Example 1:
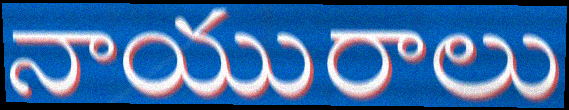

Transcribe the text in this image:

నాయురాలు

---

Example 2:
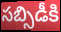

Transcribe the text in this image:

సబ్సిడీకి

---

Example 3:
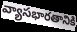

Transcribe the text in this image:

వ్యాసభారతానికి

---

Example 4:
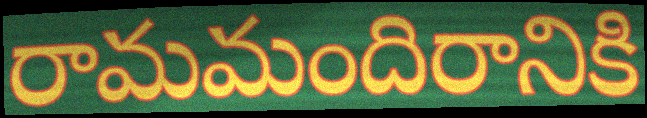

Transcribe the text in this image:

రామమందిరానికి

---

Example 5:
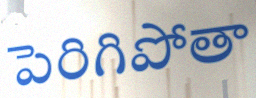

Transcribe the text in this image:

పెరిగిపోతా